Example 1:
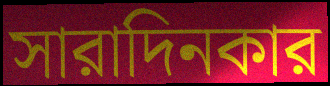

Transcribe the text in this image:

সারাদিনকার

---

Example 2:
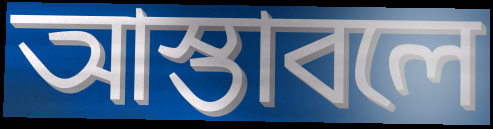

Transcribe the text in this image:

আস্তাবলে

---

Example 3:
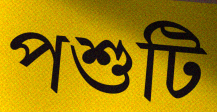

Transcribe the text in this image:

পশুটি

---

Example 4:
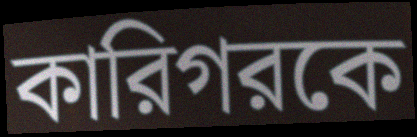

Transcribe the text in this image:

কারিগরকে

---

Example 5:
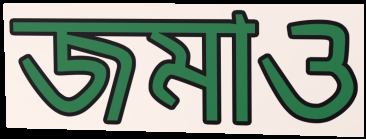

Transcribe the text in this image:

জমাও